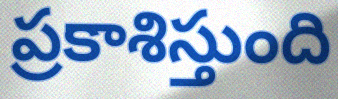
ప్రకాశిస్తుంది